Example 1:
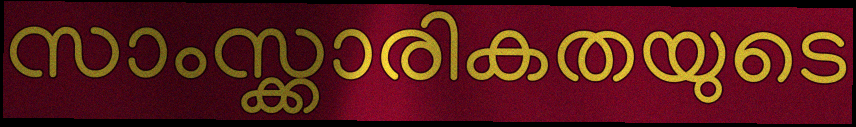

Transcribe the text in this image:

സാംസ്ക്കാരികതയുടെ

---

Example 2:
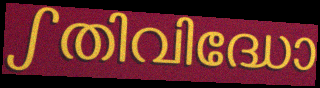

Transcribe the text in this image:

ഽതിവിദ്ധോ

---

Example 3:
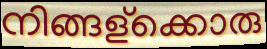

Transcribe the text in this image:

നിങ്ങള്ക്കൊരു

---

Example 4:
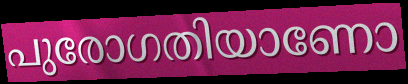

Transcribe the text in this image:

പുരോഗതിയാണോ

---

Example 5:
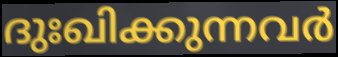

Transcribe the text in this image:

ദുഃഖിക്കുന്നവർ